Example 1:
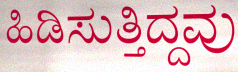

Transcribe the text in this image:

ಹಿಡಿಸುತ್ತಿದ್ದವು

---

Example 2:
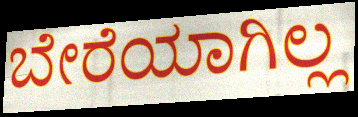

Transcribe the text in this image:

ಬೇರೆಯಾಗಿಲ್ಲ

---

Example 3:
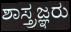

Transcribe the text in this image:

ಶಾಸ್ತ್ರಜ್ಞರು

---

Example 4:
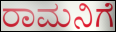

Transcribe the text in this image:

ರಾಮನಿಗೆ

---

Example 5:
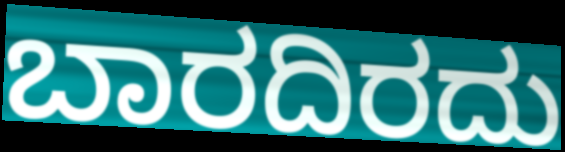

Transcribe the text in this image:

ಬಾರದಿರದು